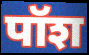
पॉश